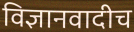
विज्ञानवादीच